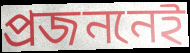
প্রজননেই